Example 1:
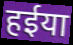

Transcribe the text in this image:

हईया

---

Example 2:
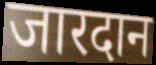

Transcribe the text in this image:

जारदान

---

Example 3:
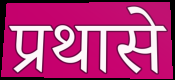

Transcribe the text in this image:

प्रथासे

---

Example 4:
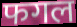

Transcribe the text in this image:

फगल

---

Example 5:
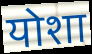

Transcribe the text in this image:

योशा